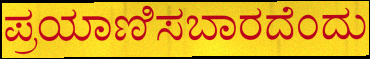
ಪ್ರಯಾಣಿಸಬಾರದೆಂದು